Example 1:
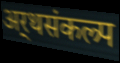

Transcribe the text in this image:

अर्थसंकल्प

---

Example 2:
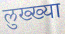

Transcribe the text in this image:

लुख्ख्या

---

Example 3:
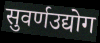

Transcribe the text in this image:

सुवर्णउद्योग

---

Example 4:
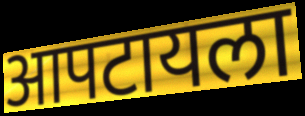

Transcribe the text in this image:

आपटायला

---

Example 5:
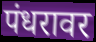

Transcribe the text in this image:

पंधरावर